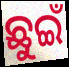
ଛୁଇଁ